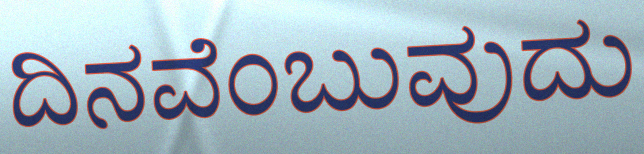
ದಿನವೆಂಬುವುದು